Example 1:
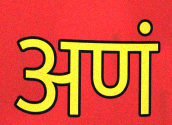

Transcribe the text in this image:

अणं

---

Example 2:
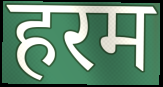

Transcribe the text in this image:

हरम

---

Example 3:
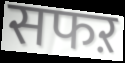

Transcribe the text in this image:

सफऱ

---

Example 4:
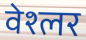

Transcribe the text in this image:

वेश्लर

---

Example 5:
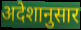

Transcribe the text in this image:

अदेशानुसार